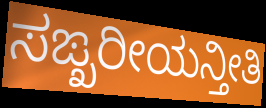
ಸಙ್ಖರೀಯನ್ತೀತಿ